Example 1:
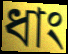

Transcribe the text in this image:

ধাং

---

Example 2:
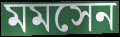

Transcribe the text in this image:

মমসেন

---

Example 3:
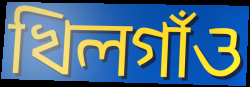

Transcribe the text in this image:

খিলগাঁও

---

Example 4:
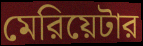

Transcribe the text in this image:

মেরিয়েটার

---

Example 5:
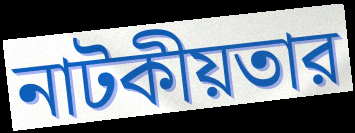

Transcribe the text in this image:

নাটকীয়তার